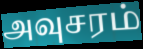
அவுசரம்